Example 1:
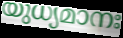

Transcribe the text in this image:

യുധ്യമാനഃ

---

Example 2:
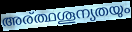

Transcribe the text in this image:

അര്ത്ഥശൂന്യതയും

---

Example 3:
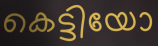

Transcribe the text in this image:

കെട്ടിയോ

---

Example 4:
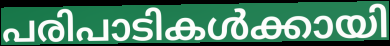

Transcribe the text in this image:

പരിപാടികൾക്കായി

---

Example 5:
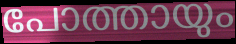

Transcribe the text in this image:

പോത്തായും